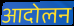
आदोलन